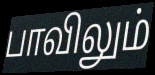
பாவிலும்